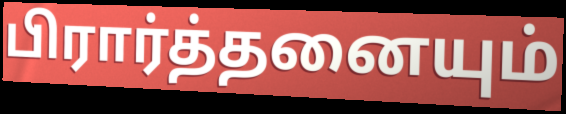
பிரார்த்தனையும்